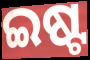
ଇଷ୍ଟ